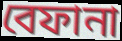
বেফানা